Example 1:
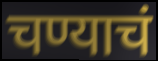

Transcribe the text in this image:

चण्याचं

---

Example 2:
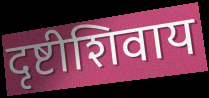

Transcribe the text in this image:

दृष्टीशिवाय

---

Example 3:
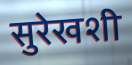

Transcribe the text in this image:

सुरेखशी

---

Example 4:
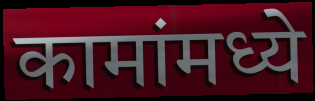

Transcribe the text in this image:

कामांमध्ये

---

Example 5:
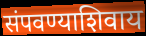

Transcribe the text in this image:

संपवण्याशिवाय